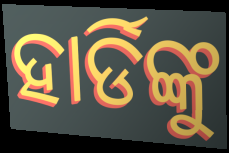
ହାର୍ଡିଙ୍କୁ